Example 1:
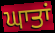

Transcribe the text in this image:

ਘਾਤਾਂ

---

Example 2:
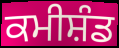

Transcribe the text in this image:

ਕਮੀਸ਼ੰਡ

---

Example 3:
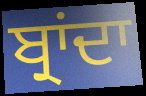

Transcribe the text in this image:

ਬ੍ਰਾਂਦਾ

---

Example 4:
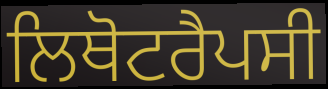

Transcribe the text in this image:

ਲਿਥੋਟਰੈਪਸੀ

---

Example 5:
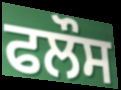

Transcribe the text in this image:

ਫਲੌਸ